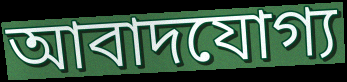
আবাদযোগ্য